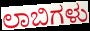
ಲಾಬಿಗಳು